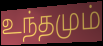
உந்தமும்